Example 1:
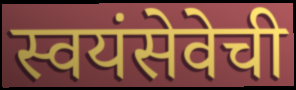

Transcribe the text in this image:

स्वयंसेवेची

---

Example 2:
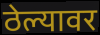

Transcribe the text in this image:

ठेल्यावर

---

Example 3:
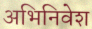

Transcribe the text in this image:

अभिनिवेश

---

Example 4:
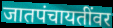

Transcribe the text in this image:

जातपंचायतींवर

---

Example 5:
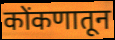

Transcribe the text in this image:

कोंकणातून